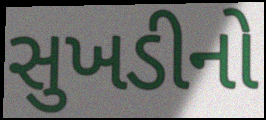
સુખડીનો